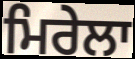
ਮਿਰੇਲਾ